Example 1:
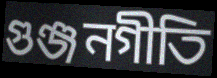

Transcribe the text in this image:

গুঞ্জনগীতি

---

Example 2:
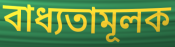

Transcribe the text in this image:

বাধ্যতামূলক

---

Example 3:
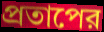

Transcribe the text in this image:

প্রতাপের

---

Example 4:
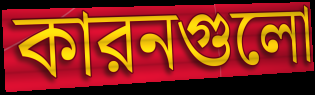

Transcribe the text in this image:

কারনগুলো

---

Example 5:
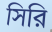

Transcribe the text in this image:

সিরি